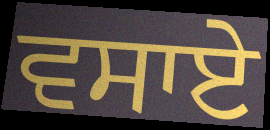
ਵਸਾਏ